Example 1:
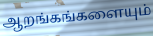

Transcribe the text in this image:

ஆறங்கங்களையும்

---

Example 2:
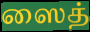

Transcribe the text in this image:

ஸைத்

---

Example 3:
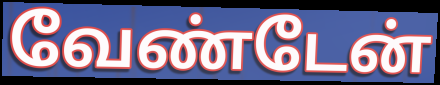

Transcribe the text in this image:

வேண்டேன்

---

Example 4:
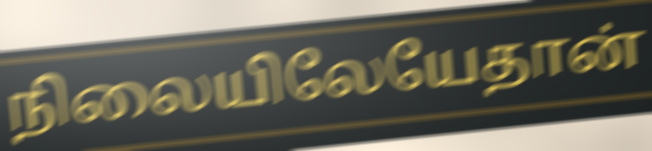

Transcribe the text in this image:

நிலையிலேயேதான்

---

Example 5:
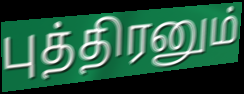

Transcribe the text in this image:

புத்திரனும்